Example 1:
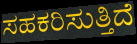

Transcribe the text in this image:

ಸಹಕರಿಸುತ್ತಿದೆ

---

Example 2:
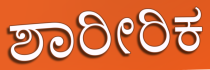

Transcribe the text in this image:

ಶಾರೀರಿಕ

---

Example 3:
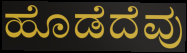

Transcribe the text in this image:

ಹೊಡೆದೆವು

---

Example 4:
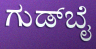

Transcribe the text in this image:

ಗುಡ್‌ಬೈ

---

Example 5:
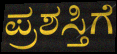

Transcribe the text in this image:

ಪ್ರಶಸ್ತಿಗೆ